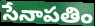
సేనాపతిం